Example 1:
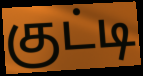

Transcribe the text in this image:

குட்டி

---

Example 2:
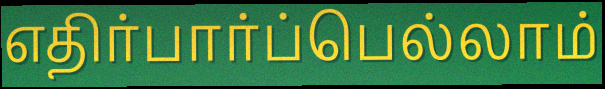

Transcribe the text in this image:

எதிர்பார்ப்பெல்லாம்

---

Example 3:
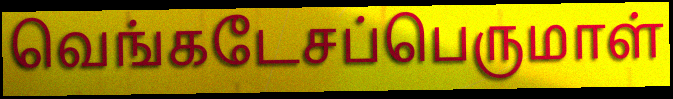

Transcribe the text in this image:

வெங்கடேசப்பெருமாள்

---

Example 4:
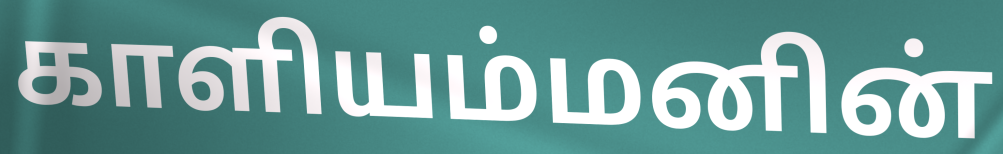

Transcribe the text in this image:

காளியம்மனின்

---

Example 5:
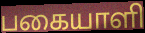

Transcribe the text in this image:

பகையாளி